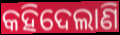
କହିଦେଲାଣି